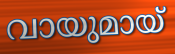
വായുമായ്